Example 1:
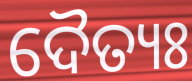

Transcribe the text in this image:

ଦୈତ୍ୟଃ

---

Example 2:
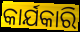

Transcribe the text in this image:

କାର୍ଯକାରି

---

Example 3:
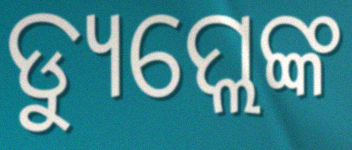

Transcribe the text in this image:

ଡ୍ୟୁପ୍ଲେଙ୍କ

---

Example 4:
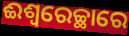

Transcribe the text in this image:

ଈଶ୍ୱରେଚ୍ଛାରେ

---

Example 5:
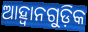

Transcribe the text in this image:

ଆହ୍ବାନଗୁଡ଼ିକ